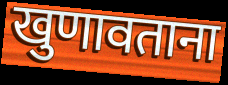
खुणावताना